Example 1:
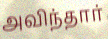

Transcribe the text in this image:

அவிந்தார்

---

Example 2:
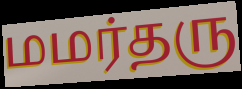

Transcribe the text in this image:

மமர்தரு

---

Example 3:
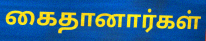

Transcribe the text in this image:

கைதானார்கள்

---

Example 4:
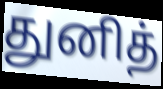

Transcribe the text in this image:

துனித்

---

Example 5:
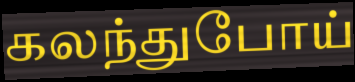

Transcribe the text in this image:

கலந்துபோய்